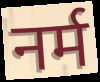
नर्म